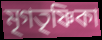
মৃগতৃষ্ণিকা